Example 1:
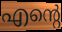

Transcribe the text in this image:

എന്റെ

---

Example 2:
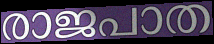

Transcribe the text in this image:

രാജപാത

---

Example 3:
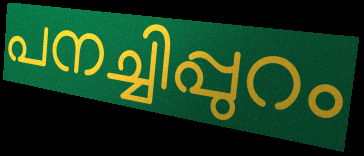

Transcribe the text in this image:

പനച്ചിപ്പുറം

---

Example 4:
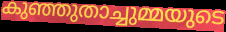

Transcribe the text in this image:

കുഞ്ഞുതാച്ചുമ്മയുടെ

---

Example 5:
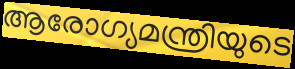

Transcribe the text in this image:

ആരോഗ്യമന്ത്രിയുടെ